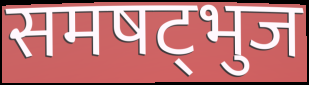
समषट्भुज